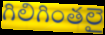
గిలిగింతలై